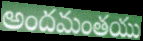
అందమంతయు